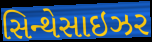
સિન્થેસાઇઝર